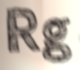
Rg